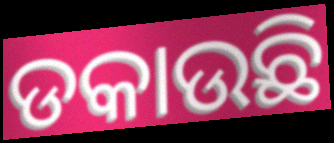
ଡକାଉଛି